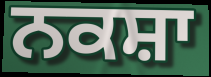
ਨਕਸ਼ਾ